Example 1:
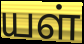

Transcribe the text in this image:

யள்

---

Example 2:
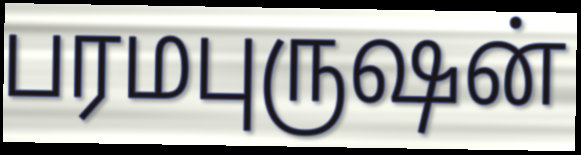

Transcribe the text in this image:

பரமபுருஷன்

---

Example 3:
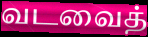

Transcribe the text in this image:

வடவைத்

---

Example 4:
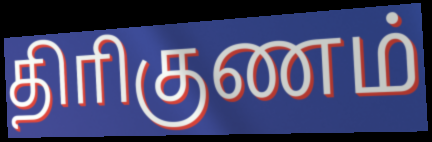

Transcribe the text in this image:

திரிகுணம்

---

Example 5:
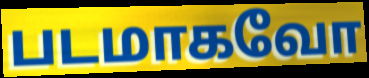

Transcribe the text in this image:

படமாகவோ